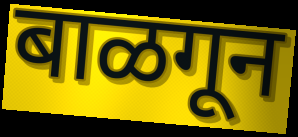
बाळगून